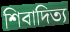
শিবাদিত্য